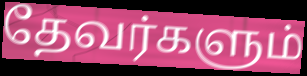
தேவர்களும்